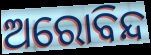
ଅରୋବିନ୍ଦ